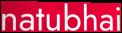
natubhai